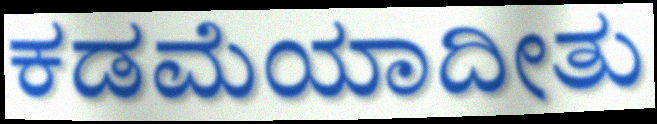
ಕಡಮೆಯಾದೀತು